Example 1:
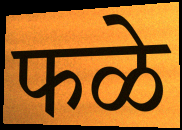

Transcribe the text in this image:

फळे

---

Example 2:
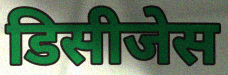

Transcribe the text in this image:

डिसीजेस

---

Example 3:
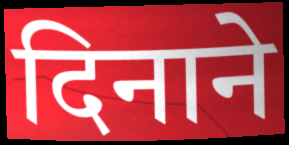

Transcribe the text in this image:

दिनाने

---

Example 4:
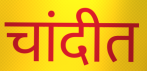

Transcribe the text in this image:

चांदीत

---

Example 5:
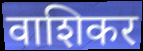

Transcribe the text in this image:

वाशिकर